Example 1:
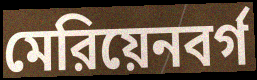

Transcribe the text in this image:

মেরিয়েনবর্গ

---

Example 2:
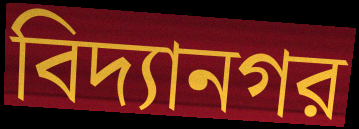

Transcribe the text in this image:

বিদ্যানগর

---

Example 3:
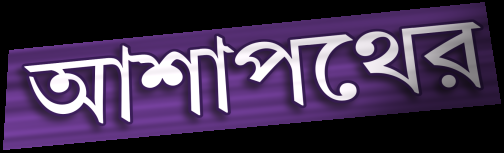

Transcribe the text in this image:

আশাপথের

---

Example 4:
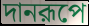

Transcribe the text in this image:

দানরূপে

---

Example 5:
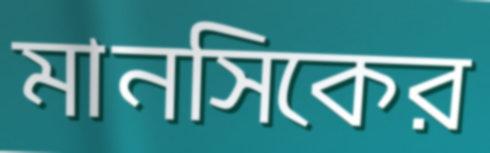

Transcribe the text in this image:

মানসিকের